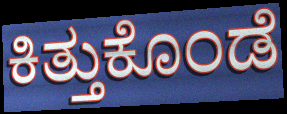
ಕಿತ್ತುಕೊಂಡೆ